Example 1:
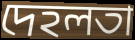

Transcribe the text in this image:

দেহলতা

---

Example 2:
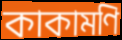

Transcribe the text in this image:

কাকামণি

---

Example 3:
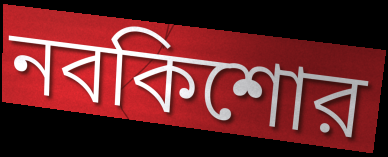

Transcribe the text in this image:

নবকিশোর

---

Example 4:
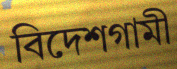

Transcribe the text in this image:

বিদেশগামী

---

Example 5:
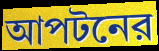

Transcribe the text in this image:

আপটনের